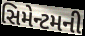
સિમેન્ટમની